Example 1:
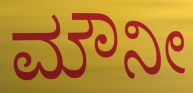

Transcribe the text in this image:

ಮೌನೀ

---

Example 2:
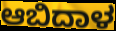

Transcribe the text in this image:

ಆಬಿದಾಳ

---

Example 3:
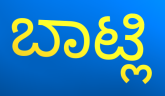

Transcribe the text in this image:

ಬಾಟ್ಲಿ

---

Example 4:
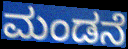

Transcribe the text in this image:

ಮಂಡನೆ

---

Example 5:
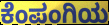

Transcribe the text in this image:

ಕೆಂಪಂಗಿಯ